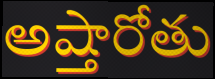
అష్తారోతు